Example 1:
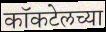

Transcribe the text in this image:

कॉकटेलच्या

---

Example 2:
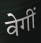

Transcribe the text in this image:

वेगीं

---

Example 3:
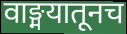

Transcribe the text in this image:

वाङ्मयातूनच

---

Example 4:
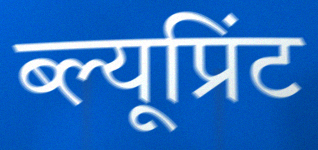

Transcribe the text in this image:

ब्ल्यूप्रिंट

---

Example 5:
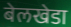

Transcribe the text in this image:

बेलखेडा